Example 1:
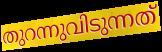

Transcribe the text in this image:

തുറന്നുവിടുന്നത്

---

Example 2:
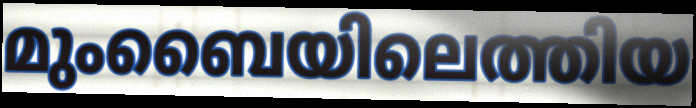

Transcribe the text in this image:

മുംബൈയിലെത്തിയ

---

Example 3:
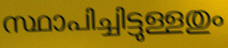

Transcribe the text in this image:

സ്ഥാപിച്ചിട്ടുള്ളതും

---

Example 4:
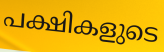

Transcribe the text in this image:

പക്ഷികളുടെ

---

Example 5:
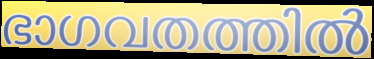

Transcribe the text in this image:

ഭാഗവതത്തിൽ